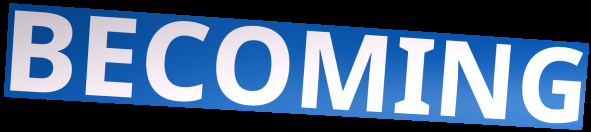
BECOMING